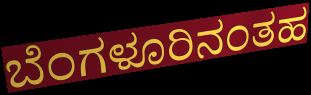
ಬೆಂಗಳೂರಿನಂತಹ